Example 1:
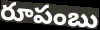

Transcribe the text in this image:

రూపంబు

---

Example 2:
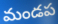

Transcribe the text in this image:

మండప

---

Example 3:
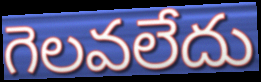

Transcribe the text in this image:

గెలవలేదు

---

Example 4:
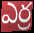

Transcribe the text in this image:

ఎర్ర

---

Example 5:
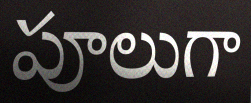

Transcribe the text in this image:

పూలుగా